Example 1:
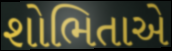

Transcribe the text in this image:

શોભિતાએ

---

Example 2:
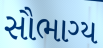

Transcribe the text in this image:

સૌભાગ્ય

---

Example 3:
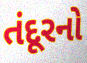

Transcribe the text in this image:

તંદૂરનો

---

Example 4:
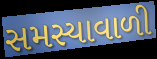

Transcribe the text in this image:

સમસ્યાવાળી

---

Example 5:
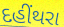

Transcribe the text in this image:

દહીંથરા